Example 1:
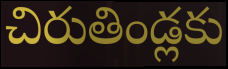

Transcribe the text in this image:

చిరుతిండ్లకు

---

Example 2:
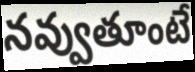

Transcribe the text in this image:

నవ్వుతూంటే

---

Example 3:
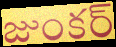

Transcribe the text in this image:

జుంకర్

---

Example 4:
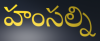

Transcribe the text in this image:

హంసల్ని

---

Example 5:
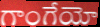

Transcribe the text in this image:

గాంగేయో